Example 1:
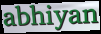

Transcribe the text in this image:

abhiyan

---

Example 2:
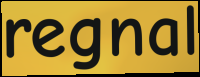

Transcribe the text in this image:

regnal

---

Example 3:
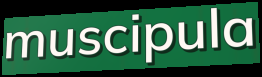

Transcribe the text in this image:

muscipula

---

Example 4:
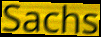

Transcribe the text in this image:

Sachs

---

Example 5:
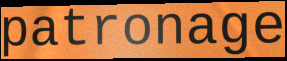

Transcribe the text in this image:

patronage